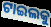
ଟାଇଲକୁ